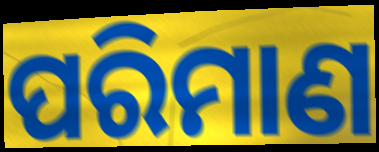
ପରିମାଣ